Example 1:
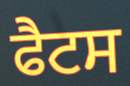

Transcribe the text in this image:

ਫੈਟਸ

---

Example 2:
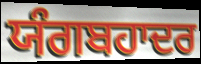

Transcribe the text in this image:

ਯੰਗਬਹਾਦਰ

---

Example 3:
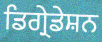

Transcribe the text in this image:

ਡਿਗ੍ਰੇਡੇਸ਼ਨ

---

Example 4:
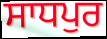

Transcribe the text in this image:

ਸਾਧਪੁਰ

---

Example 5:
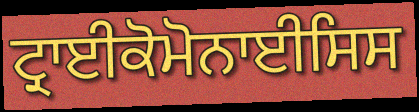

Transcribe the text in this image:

ਟ੍ਰਾਈਕੋਮੋਨਾਈਸਿਸ